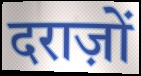
दराज़ों